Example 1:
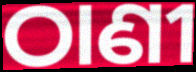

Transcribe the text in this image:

ଠାଣୀ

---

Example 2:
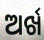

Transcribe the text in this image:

ଅର୍ଖ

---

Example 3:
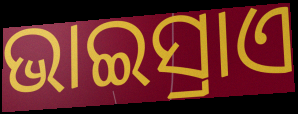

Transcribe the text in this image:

ଭାଇସ୍ରାଏ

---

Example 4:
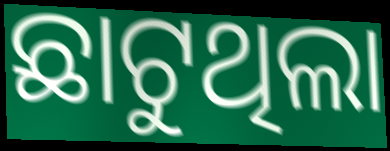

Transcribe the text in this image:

ଛାଟୁଥିଲା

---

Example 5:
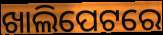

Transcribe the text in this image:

ଖାଲିପେଟରେ